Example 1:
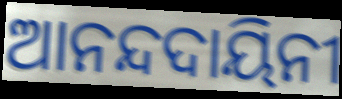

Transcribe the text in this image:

ଆନନ୍ଦଦାୟିନୀ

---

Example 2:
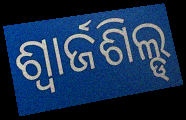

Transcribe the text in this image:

ଶ୍ୱାର୍ଜଶିଲ୍ଡ୍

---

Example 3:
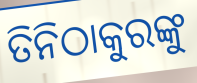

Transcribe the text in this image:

ତିନିଠାକୁରଙ୍କୁ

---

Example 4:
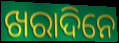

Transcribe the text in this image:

ଖରାଦିନେ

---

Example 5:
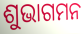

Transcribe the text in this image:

ଶୁଭାଗମନ